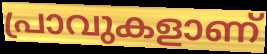
പ്രാവുകളാണ്